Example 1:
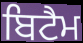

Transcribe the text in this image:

ਬਿਟੈਮ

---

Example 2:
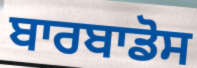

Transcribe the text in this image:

ਬਾਰਬਾਡੋਸ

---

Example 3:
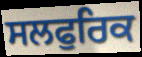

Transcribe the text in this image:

ਸਲਫੁਰਿਕ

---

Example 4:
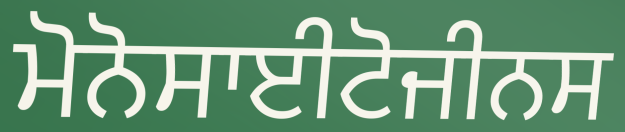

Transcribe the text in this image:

ਮੋਨੋਸਾਈਟੋਜੀਨਸ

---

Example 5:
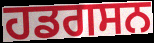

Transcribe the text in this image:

ਹਡਗਸਨ